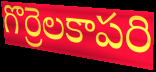
గొర్రెలకాపరి